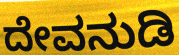
ದೇವನುಡಿ